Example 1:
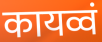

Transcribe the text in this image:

कायव्वं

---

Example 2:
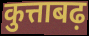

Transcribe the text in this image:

कुत्ताबढ़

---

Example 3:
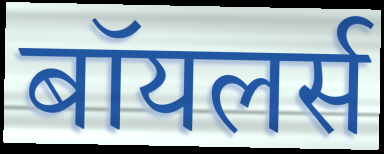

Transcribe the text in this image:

बॉयलर्स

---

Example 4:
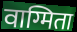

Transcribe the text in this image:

वाग्मिता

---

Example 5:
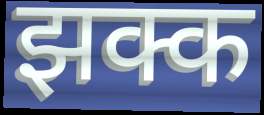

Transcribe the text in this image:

झक्क